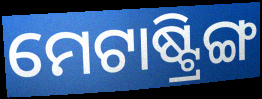
ମେଟାଷ୍ଟ୍ରିଙ୍ଗ